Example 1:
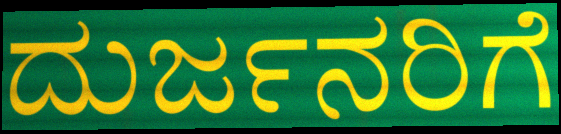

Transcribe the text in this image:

ದುರ್ಜನರಿಗೆ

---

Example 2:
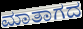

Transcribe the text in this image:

ಮಾತಾಗದ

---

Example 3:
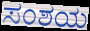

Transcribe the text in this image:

ಸಂಶಯ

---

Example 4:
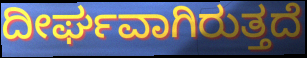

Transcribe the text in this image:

ದೀರ್ಘವಾಗಿರುತ್ತದೆ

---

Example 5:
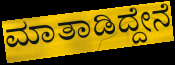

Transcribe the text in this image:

ಮಾತಾಡಿದ್ದೇನೆ